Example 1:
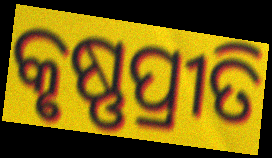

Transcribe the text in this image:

କୃଷ୍ଣପ୍ରୀତି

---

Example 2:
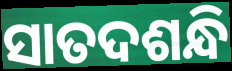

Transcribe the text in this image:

ସାତଦଶନ୍ଧି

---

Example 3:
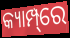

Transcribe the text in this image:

କ୍ୟାମ୍ପ୍‌ରେ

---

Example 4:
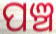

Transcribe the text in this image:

ପଞ୍ଚ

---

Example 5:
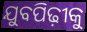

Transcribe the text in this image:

ଯୁବପିଢ଼ୀକୁ